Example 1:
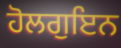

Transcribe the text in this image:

ਹੋਲਗੁਇਨ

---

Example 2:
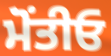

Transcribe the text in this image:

ਮੋਂਤੀਓ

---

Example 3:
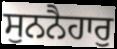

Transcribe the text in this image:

ਸੁਨਨੈਹਾਰੁ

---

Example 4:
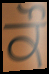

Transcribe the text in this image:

ਕੌ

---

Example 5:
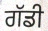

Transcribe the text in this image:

ਗੱਡੀ